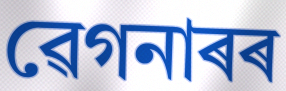
ৱেগনাৰৰ